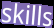
skills